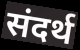
संदर्थ